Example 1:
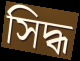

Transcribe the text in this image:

সিদ্ধ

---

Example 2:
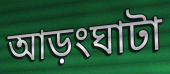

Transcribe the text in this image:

আড়ংঘাটা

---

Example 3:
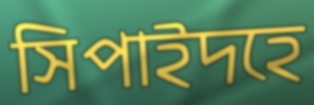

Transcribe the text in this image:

সিপাইদহে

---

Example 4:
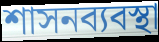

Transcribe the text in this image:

শাসনব্যবস্থা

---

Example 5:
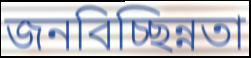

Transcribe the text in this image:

জনবিচ্ছিন্নতা